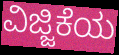
ವಿಜ್ಜಿಕೆಯ